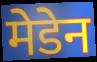
मेडेन